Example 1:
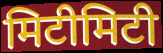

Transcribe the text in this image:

मिटीमिटी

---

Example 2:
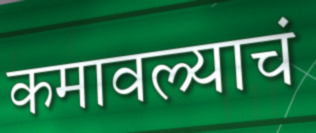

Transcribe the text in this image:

कमावल्याचं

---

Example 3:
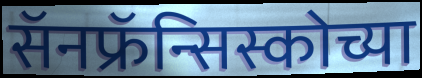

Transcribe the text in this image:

सॅनफ्रॅन्सिस्कोच्या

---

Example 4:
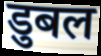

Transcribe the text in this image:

डुबल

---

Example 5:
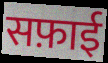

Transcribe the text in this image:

सफ़ाई